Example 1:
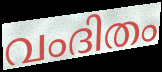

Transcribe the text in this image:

വംദിതം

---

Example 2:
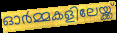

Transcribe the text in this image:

ഓർമ്മകളിലേയ്ക്ക്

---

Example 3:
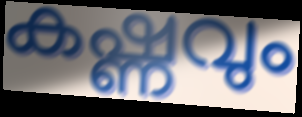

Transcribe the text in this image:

കഷ്ണവും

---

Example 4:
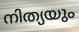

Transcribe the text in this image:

നിത്യയും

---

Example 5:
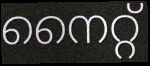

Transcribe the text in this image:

നൈറ്റ്